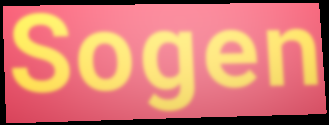
Sogen